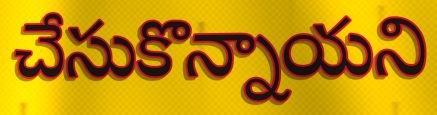
చేసుకొన్నాయని